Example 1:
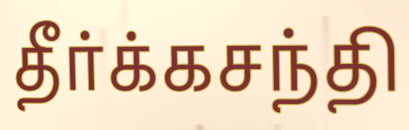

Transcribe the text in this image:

தீர்க்கசந்தி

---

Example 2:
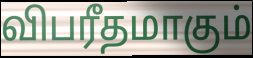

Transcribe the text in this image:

விபரீதமாகும்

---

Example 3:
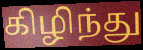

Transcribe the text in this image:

கிழிந்து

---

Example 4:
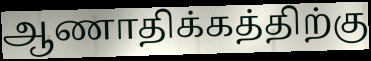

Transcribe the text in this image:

ஆணாதிக்கத்திற்கு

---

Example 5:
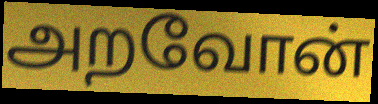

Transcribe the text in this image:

அறவோன்